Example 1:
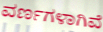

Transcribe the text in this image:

ವರ್ಣಗಳಾಗಿವೆ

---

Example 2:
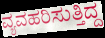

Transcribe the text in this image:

ವ್ಯವಹರಿಸುತ್ತಿದ್ದ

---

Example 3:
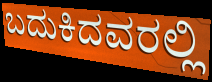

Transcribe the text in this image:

ಬದುಕಿದವರಲ್ಲಿ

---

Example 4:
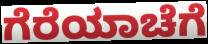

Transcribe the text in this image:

ಗೆರೆಯಾಚೆಗೆ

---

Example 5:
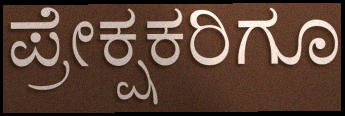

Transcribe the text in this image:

ಪ್ರೇಕ್ಷಕರಿಗೂ